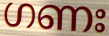
ഗണഃ